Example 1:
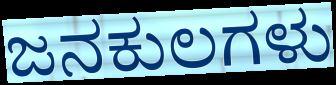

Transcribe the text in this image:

ಜನಕುಲಗಳು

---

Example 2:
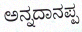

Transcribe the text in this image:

ಅನ್ನದಾನಪ್ಪ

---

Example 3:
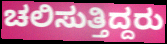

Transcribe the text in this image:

ಚಲಿಸುತ್ತಿದ್ದರು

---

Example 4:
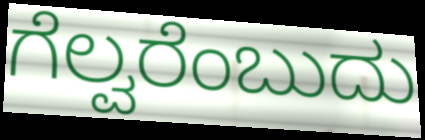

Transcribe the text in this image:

ಗೆಲ್ವರೆಂಬುದು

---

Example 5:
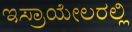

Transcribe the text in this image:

ಇಸ್ರಾಯೇಲರಲ್ಲಿ